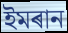
ইমৰান